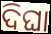
ଦିଘା